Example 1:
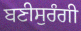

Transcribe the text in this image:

ਬਣੀਸੁਰੰਗੀ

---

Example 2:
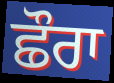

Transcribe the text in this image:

ਛੌਰਾ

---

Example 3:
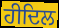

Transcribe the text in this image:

ਹੀਦਿਲ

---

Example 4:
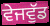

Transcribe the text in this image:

ਵੇਜਵੁੱਡ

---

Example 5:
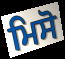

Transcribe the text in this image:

ਮਿਸੋ